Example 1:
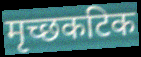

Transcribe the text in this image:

मृच्छकटिक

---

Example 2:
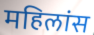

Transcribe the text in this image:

महिलांस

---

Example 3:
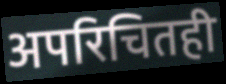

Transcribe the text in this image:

अपरिचितही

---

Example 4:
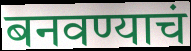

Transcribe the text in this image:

बनवण्याचं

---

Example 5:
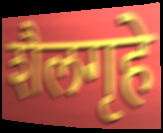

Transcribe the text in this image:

शैलगृहे